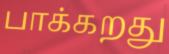
பாக்கறது